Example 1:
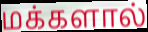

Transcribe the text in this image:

மக்களால்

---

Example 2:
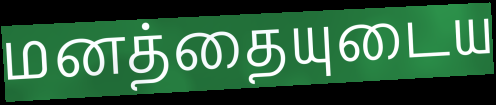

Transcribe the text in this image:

மனத்தையுடைய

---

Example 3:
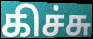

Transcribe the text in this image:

கிச்சு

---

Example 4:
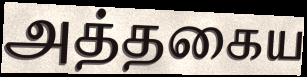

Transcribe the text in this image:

அத்தகைய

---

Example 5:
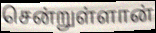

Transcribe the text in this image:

சென்றுள்ளான்